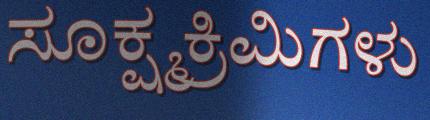
ಸೂಕ್ಷ್ಮಕ್ರಿಮಿಗಳು